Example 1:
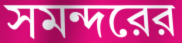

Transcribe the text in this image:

সমন্দরের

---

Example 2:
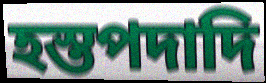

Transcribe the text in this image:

হস্তপদাদি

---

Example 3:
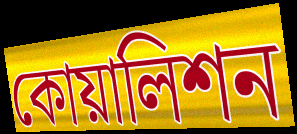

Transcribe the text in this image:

কোয়ালিশন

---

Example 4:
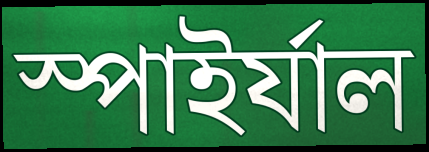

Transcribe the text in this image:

স্পাইর্যাল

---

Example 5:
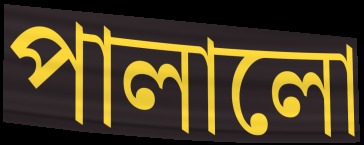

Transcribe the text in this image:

পালালো